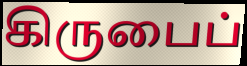
கிருபைப்